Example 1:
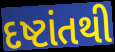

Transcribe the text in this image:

દષ્ટાંતથી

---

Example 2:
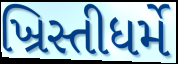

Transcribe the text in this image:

ખ્રિસ્તીધર્મે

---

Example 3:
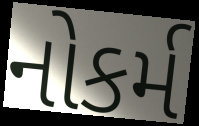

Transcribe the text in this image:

નોકર્મ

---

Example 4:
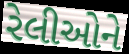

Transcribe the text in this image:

રેલીઓને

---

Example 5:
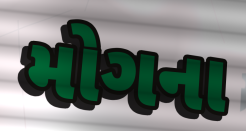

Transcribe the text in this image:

મોગના